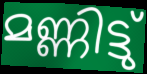
മണ്ണിട്ടു്